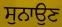
ਸੁਨਾਉਣ